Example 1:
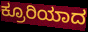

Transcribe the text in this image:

ಕ್ರೂರಿಯಾದ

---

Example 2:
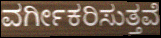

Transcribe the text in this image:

ವರ್ಗೀಕರಿಸುತ್ತವೆ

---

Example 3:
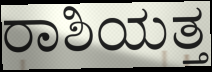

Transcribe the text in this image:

ರಾಶಿಯತ್ತ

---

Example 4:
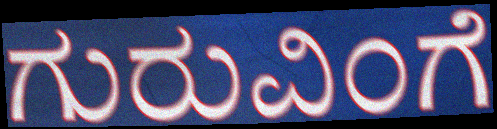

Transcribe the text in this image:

ಗುರುವಿಂಗೆ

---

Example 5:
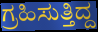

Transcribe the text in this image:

ಗ್ರಹಿಸುತ್ತಿದ್ದ